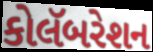
કોલૅબરેશન